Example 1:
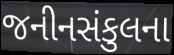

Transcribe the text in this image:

જનીનસંકુલના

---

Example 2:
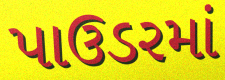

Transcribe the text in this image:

પાઉડરમાં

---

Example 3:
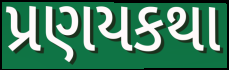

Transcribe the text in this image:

પ્રણયકથા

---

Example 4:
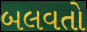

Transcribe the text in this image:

બલવતો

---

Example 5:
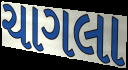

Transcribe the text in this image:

ચાગલા